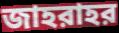
জাহরাহর